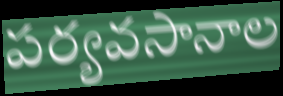
పర్యవసానాల